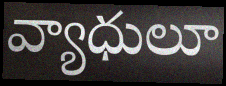
వ్యాధులూ